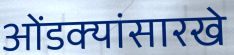
ओंडक्यांसारखे